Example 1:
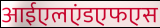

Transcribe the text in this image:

आईएलएंडएफएस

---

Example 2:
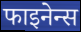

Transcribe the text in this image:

फाइनेन्स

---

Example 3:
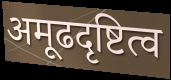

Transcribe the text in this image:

अमूढदृष्टित्व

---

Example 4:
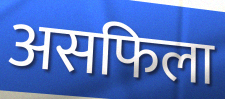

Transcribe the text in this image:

असफिला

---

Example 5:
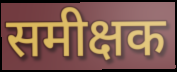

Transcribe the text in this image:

समीक्षक